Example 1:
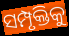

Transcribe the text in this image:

ସମ୍ପୃକ୍ତିକୁ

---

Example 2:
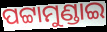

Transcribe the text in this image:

ପଟ୍ଟାମୁଣ୍ଡାଇ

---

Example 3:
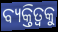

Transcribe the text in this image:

ବ୍ୟକ୍ତିତ୍ୱକୁ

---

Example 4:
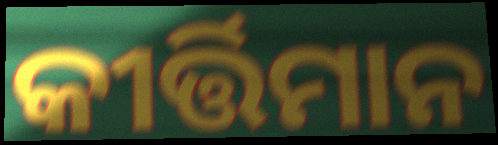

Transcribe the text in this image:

କୀର୍ତ୍ତିମାନ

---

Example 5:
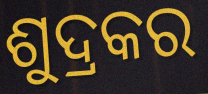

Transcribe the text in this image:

ଶୁଦ୍ରକର